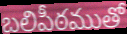
బలిపీఠముతో